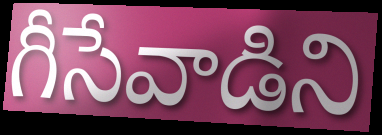
గీసేవాడిని